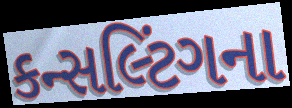
કન્સલ્ટિંગના